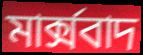
মার্ক্সবাদ